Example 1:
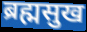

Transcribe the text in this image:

ब्रह्मसुख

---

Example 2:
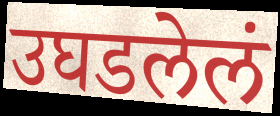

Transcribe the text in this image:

उघडलेलं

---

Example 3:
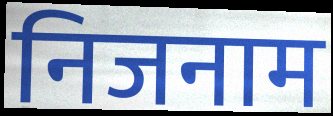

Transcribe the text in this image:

निजनाम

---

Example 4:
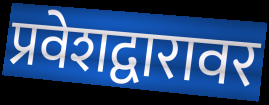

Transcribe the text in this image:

प्रवेशद्वारावर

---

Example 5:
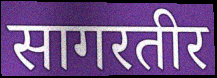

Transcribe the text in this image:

सागरतीर